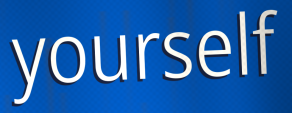
yourself